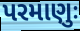
પરમાણુઃ